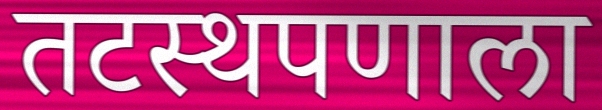
तटस्थपणाला